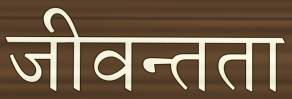
जीवन्तता